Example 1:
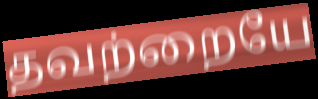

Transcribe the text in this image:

தவற்றையே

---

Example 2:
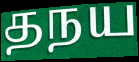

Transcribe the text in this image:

தநய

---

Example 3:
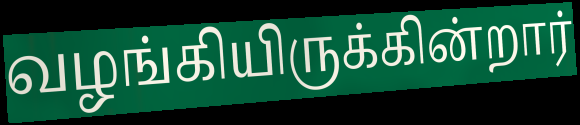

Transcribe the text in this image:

வழங்கியிருக்கின்றார்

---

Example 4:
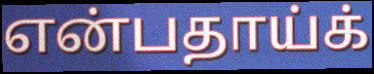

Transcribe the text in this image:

என்பதாய்க்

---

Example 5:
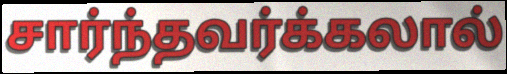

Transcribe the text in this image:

சார்ந்தவர்க்கலால்